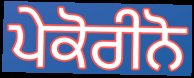
ਪੇਕੋਰੀਨੋ